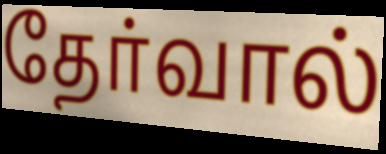
தேர்வால்